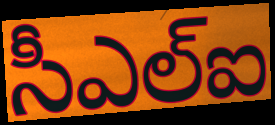
సీఎల్ఐ